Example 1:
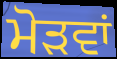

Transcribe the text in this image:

ਮੋੜਵਾਂ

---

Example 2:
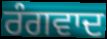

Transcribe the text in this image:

ਰੰਗਵਾਦ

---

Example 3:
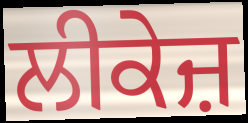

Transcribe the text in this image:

ਲੀਕੇਜ਼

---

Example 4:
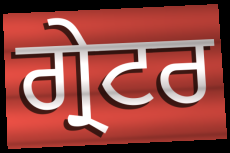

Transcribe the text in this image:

ਗ੍ਰੇਟਰ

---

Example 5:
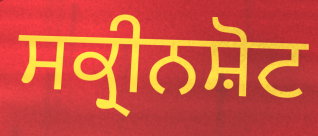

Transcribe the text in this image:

ਸਕ੍ਰੀਨਸ਼ੋਟ